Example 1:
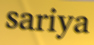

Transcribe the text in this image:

sariya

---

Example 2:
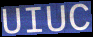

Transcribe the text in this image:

UIUC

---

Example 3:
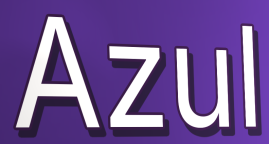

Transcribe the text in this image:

Azul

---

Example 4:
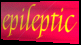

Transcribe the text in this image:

epileptic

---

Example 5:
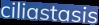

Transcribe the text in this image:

ciliastasis